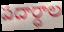
పదార్ధాల